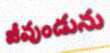
జీవుండును